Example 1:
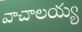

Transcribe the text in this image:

వాచాలయ్య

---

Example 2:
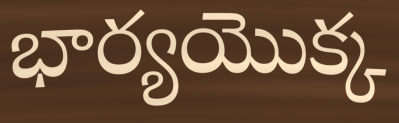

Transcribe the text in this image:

భార్యయొక్క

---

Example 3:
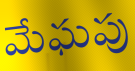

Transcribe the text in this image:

మేఘపు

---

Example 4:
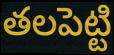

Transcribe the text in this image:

తలపెట్టి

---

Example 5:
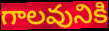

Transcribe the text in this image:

గాలవునికి